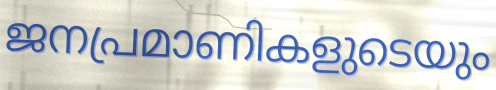
ജനപ്രമാണികളുടെയും